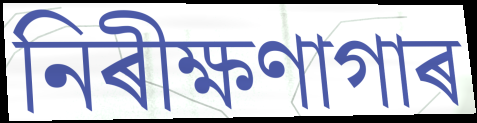
নিৰীক্ষণাগাৰ